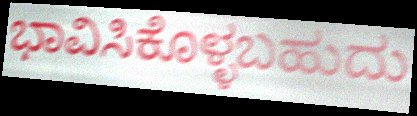
ಭಾವಿಸಿಕೊಳ್ಳಬಹುದು